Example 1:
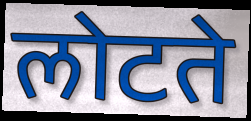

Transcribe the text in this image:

लोटते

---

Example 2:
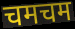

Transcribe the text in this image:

चमचम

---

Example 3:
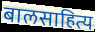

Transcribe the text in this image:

बालसाहित्य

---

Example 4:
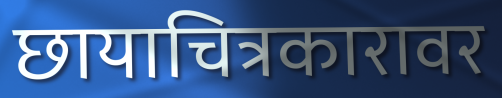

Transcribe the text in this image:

छायाचित्रकारावर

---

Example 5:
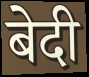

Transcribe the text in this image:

बेदी